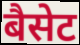
बैसेट